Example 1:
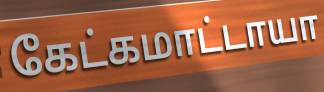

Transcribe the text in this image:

கேட்கமாட்டாயா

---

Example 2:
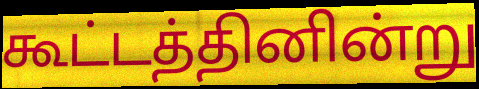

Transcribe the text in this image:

கூட்டத்தினின்று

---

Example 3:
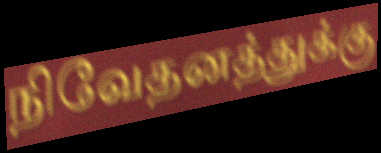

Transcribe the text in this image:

நிவேதனத்துக்கு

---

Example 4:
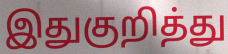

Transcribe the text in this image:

இதுகுறித்து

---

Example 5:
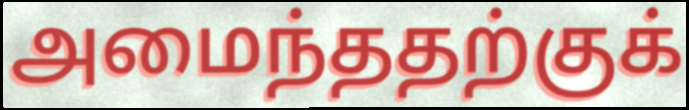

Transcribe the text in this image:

அமைந்ததற்குக்